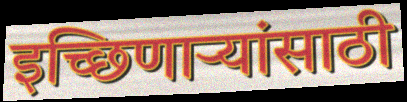
इच्छिणाऱ्यांसाठी